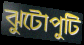
ঝুটোপুটি